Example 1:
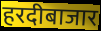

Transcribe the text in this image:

हरदीबाजार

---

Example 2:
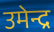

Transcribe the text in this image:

उमेन्द्र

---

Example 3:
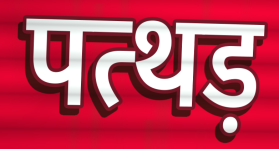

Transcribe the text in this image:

पत्थड़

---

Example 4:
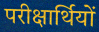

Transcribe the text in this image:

परीक्षार्थियों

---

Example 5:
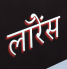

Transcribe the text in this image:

लॉरेंस